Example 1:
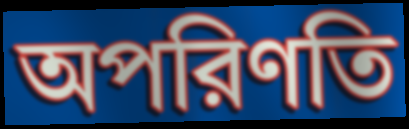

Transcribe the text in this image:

অপরিণতি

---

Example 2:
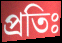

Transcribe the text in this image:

প্রতিঃ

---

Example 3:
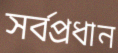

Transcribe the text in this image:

সর্বপ্রধান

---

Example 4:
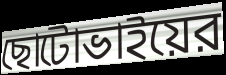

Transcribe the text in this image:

ছোটোভাইয়ের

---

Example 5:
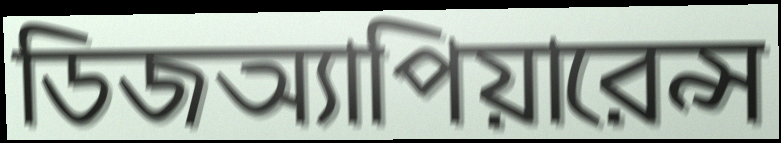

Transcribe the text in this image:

ডিজঅ্যাপিয়ারেন্স